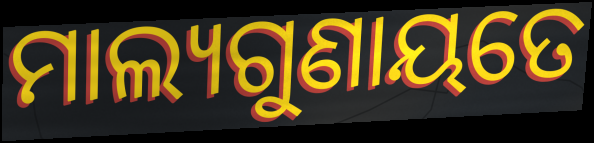
ମାଲ୍ୟଗୁଣାୟତେ